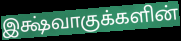
இக்ஷ்வாகுக்களின்